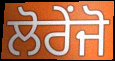
ਲੋਰੇਂਜੋ